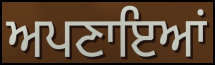
ਅਪਣਾਇਆਂ